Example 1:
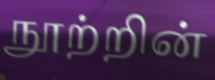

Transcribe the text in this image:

நூற்றின்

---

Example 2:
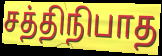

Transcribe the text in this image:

சத்திநிபாத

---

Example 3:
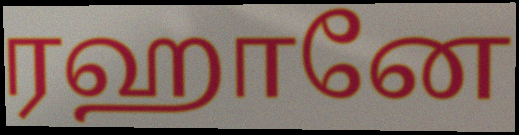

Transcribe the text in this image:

ரஹானே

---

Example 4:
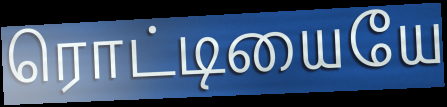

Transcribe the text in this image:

ரொட்டியையே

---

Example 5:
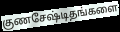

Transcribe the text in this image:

குணசேஷ்டிதங்களை